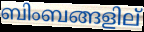
ബിംബങ്ങളില്